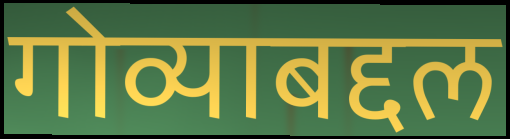
गोव्याबद्दल